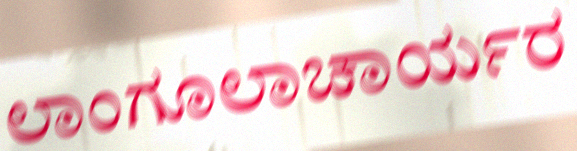
ಲಾಂಗೂಲಾಚಾರ್ಯರ